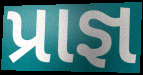
પ્રાજ્ઞ